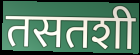
तसतशी